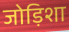
जोड़िशा